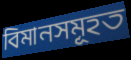
বিমানসমূহত